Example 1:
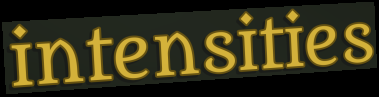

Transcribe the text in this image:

intensities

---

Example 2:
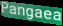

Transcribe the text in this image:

Pangaea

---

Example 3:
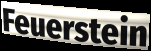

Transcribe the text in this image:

Feuerstein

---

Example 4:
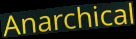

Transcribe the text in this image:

Anarchical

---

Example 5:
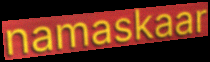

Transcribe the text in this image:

namaskaar